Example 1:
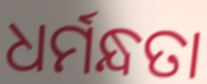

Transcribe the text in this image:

ଧର୍ମନ୍ଧତା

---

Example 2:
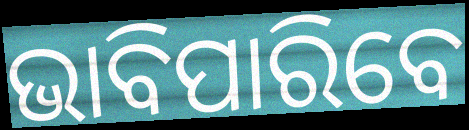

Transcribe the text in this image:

ଭାବିପାରିବେ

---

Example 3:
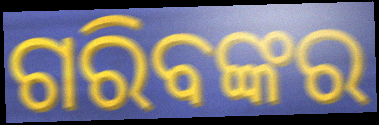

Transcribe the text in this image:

ଗରିବଙ୍କର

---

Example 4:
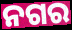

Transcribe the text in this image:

ନଗର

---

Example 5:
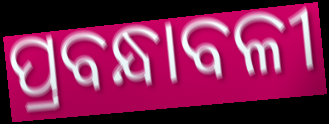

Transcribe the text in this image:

ପ୍ରବନ୍ଧାବଳୀ